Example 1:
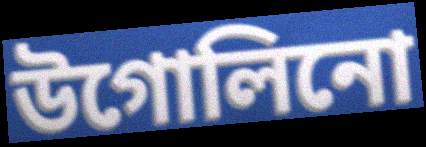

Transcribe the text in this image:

উগোলিনো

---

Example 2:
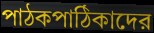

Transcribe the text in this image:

পাঠকপাঠিকাদের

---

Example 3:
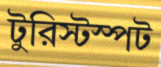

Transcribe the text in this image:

টুরিস্টস্পট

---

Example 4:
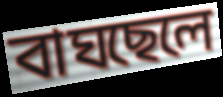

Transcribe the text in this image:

বাঘছেলে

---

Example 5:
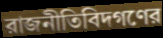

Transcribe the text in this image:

রাজনীতিবিদগণের